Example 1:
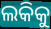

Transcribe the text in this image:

ଲକିକୁ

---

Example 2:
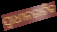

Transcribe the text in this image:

ସ୍ୱାଧୀନତାଟିକ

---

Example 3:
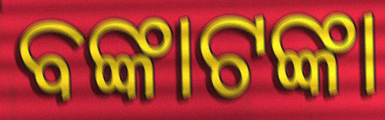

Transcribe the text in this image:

ବଙ୍କାଟଙ୍କା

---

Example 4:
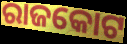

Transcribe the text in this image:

ରାଜକୋଟ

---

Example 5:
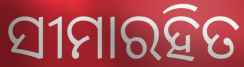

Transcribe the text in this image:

ସୀମାରହିତ